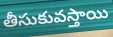
తీసుకువస్తాయి